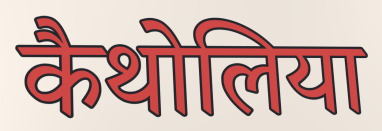
कैथोलिया